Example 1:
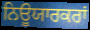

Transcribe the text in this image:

ਨਿਊਯਾਰਕਰਾਂ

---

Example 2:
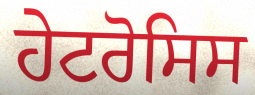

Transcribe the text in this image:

ਹੇਟਰੋਸਿਸ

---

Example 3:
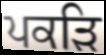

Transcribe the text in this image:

ਪਕੜਿ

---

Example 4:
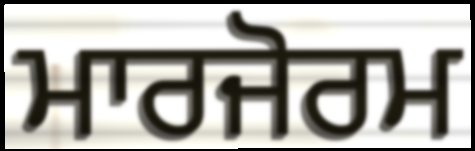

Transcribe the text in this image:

ਮਾਰਜੋਰਮ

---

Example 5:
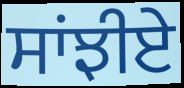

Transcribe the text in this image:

ਸਾਂਝੀਏ